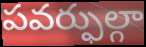
పవర్ఫుల్గా